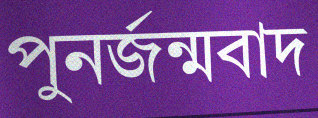
পুনর্জন্মবাদ